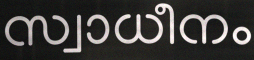
സ്വാധീനം